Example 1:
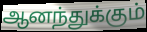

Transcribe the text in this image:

ஆனந்துக்கும்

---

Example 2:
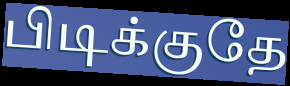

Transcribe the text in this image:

பிடிக்குதே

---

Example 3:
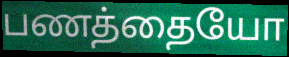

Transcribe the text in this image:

பணத்தையோ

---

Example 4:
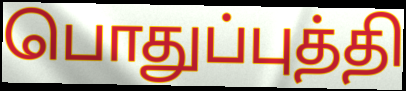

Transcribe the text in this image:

பொதுப்புத்தி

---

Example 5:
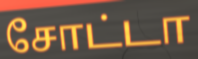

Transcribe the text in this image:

சோட்டா